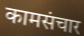
कामसंचार